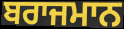
ਬਰਾਜਮਾਨ